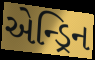
એન્ડ્રિન